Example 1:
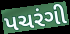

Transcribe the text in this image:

પચરંગી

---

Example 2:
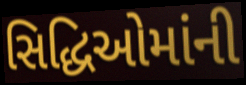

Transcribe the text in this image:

સિદ્ધિઓમાંની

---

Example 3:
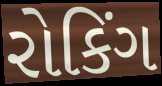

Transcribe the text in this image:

રોકિંગ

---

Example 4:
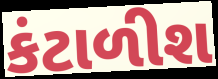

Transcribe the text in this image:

કંટાળીશ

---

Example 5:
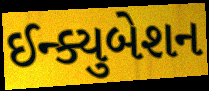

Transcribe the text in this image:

ઈન્ક્યુબેશન